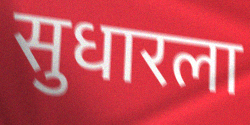
सुधारला